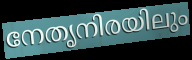
നേതൃനിരയിലും